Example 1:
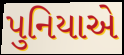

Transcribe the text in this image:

પુનિયાએ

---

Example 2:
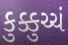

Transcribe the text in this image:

કુક્કુચ્ચં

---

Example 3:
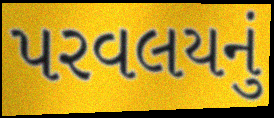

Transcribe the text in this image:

પરવલયનું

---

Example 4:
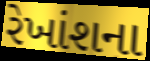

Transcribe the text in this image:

રેખાંશના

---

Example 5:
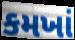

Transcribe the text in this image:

કમખાં